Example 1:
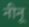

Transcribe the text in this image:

नीनू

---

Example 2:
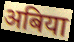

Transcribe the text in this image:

अबिया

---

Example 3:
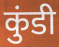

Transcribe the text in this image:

कुंडी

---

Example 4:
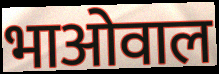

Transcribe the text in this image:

भाओवाल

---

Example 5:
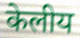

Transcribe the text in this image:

केलीय